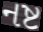
નષ્ટ